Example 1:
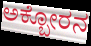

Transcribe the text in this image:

ಅಕ್ಬೋರನ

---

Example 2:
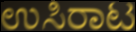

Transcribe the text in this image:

ಉಸಿರಾಟ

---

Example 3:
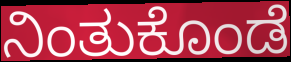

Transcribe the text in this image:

ನಿಂತುಕೊಂಡೆ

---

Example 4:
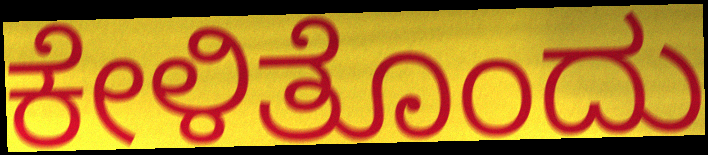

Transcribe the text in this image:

ಕೇಳಿತೊಂದು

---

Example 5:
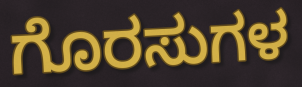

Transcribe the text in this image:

ಗೊರಸುಗಳ